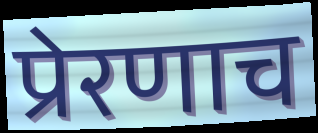
प्रेरणाच